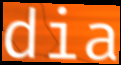
dia